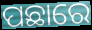
ପଛାରେ